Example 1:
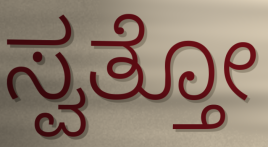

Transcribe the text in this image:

ಸ್ವತ್ತೋ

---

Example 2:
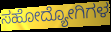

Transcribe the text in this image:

ಸಹೋದ್ಯೋಗಿಗಳ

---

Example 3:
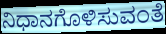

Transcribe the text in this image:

ನಿಧಾನಗೊಳಿಸುವಂತೆ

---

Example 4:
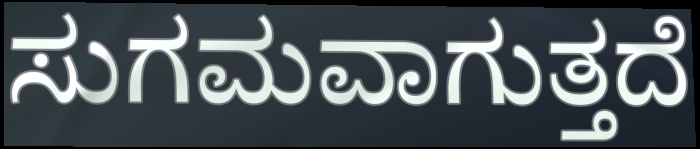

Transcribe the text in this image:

ಸುಗಮವಾಗುತ್ತದೆ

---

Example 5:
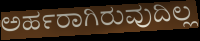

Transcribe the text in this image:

ಅರ್ಹರಾಗಿರುವುದಿಲ್ಲ